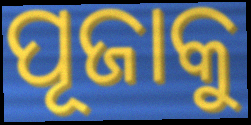
ପୂଜାକୁ